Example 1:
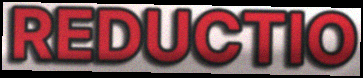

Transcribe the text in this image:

REDUCTIO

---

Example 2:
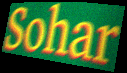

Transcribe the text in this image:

Sohar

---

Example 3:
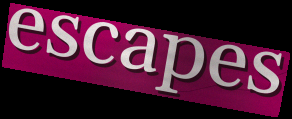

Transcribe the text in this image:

escapes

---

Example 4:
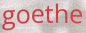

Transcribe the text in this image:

goethe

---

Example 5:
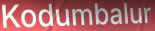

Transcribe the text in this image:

Kodumbalur